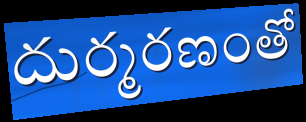
దుర్మరణంతో